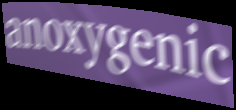
anoxygenic